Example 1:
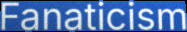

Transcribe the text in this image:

Fanaticism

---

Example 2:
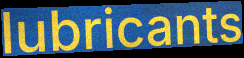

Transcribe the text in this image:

lubricants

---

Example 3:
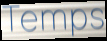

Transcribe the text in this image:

Temps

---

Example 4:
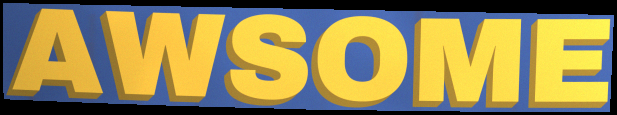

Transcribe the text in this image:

AWSOME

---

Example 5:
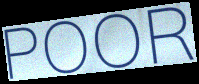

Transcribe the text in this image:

POOR